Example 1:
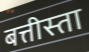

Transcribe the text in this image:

बत्तीस्ता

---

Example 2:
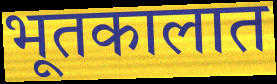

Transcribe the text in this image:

भूतकालात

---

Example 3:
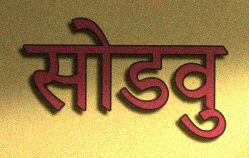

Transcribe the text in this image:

सोडवु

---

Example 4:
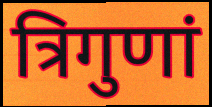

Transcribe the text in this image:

त्रिगुणां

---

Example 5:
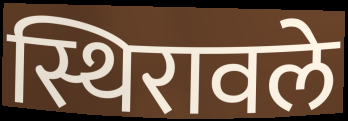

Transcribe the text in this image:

स्थिरावले